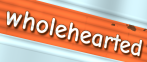
wholehearted